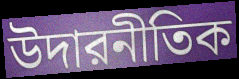
উদারনীতিক